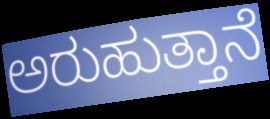
ಅರುಹುತ್ತಾನೆ